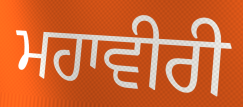
ਮਹਾਵੀਰੀ